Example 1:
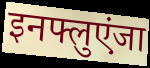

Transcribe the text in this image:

इनफ्लुएंजा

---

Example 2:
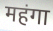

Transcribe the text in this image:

महंगा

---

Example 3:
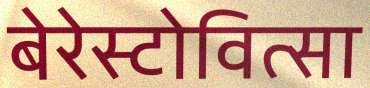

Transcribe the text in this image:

बेरेस्टोवित्सा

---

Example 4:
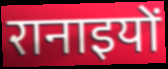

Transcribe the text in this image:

रानाइयों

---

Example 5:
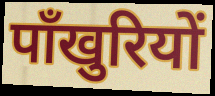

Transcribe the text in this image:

पाँखुरियों